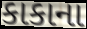
કાકાના